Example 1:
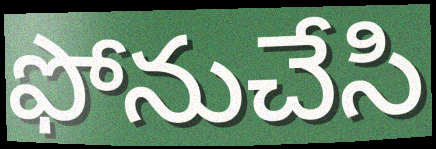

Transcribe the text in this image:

ఫోనుచేసి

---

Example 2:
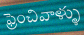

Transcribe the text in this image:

ఫ్రెంచివాళ్ళు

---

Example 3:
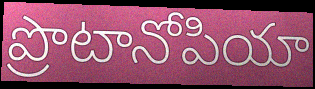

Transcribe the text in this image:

ప్రొటానోపియా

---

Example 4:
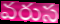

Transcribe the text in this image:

వరుస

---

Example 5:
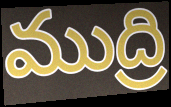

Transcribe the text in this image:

ముద్రి